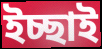
ইচ্ছাই